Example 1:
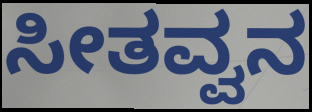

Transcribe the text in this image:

ಸೀತವ್ವನ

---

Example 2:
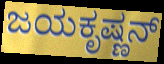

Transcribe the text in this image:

ಜಯಕೃಷ್ಣನ್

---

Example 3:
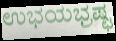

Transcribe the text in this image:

ಉಭಯಭ್ರಷ್ಟ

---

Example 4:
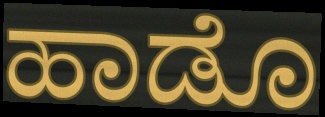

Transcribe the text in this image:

ಹಾಡೊ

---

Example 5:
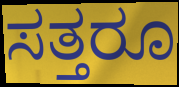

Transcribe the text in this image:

ಸತ್ತರೂ